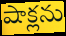
షాక్లను